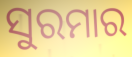
ସୁରମାର